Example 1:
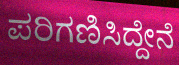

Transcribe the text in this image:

ಪರಿಗಣಿಸಿದ್ದೇನೆ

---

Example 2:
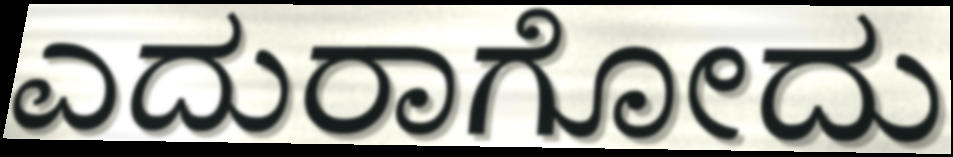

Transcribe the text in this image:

ಎದುರಾಗೋದು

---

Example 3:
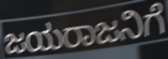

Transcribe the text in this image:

ಜಯರಾಜನಿಗೆ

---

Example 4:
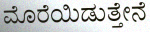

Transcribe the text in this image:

ಮೊರೆಯಿಡುತ್ತೇನೆ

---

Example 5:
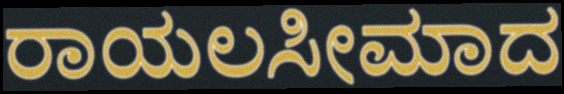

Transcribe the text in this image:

ರಾಯಲಸೀಮಾದ